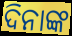
ଦିନାଙ୍କ